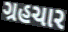
ગ્રહચાર